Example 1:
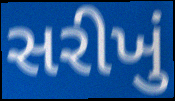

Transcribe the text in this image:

સરીખું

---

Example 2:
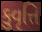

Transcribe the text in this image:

કુવૃત્તિ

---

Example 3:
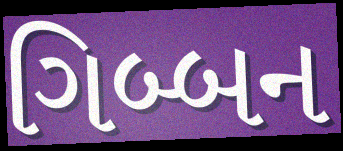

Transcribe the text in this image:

ગિબ્બન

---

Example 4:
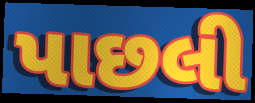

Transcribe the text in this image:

પાછલી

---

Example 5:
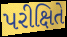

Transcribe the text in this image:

પરીક્ષિતે